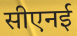
सीएनई